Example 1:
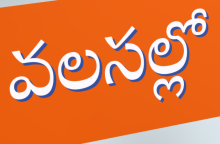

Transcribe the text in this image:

వలసల్లో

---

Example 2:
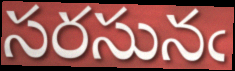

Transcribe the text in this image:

సరసునఁ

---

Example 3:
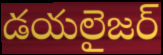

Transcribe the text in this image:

డయలైజర్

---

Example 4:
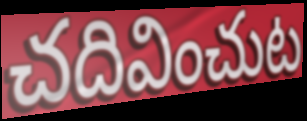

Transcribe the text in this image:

చదివించుట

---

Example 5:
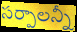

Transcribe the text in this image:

సర్పాలన్నీ